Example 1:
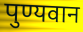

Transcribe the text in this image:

पुण्यवान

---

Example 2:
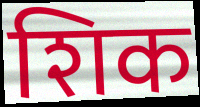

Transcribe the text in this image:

शिक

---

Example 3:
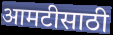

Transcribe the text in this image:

आमटीसाठी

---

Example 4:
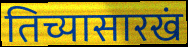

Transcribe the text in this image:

तिच्यासारखं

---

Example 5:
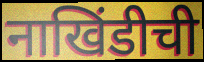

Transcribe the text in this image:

नाखिंडीची